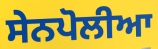
ਸੇਨਪੋਲੀਆ